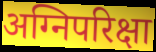
अग्निपरिक्षा